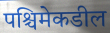
पश्चिमेकडील